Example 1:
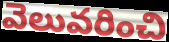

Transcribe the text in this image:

వెలువరించి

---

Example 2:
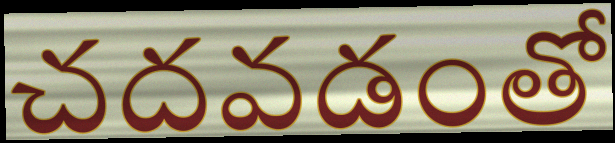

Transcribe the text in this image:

చదవడంతో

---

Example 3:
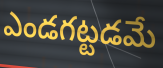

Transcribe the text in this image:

ఎండగట్టడమే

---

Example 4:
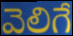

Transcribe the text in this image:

వెలిగే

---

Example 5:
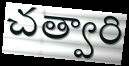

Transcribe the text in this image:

చత్వారి